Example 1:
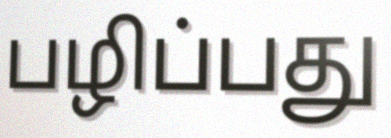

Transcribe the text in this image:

பழிப்பது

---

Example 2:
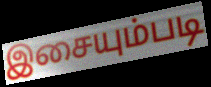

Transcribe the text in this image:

இசையும்படி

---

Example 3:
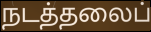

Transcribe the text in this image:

நடத்தலைப்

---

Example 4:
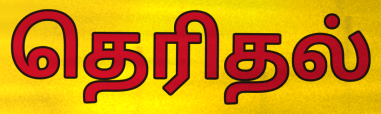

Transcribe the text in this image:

தெரிதல்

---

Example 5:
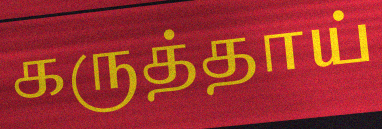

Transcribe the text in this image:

கருத்தாய்